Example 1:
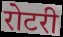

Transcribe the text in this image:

रोटरी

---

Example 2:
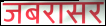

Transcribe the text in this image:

जबरासर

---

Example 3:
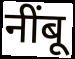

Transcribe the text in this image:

नींबू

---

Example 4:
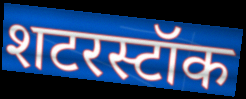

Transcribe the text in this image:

शटरस्टॉक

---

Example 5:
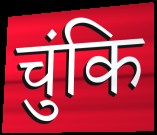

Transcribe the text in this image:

चुंकि